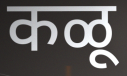
कळू